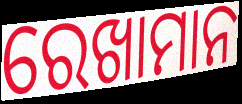
ରେଖାମାନ